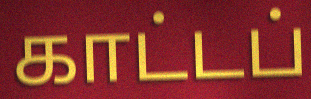
காட்டப்